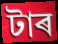
টাৰ